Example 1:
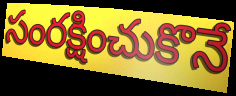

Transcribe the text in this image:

సంరక్షించుకొనే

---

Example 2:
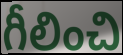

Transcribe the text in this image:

గీలించి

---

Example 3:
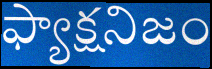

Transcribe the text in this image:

ఫ్యాక్షనిజం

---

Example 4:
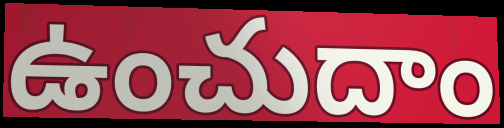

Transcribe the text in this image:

ఉంచుదాం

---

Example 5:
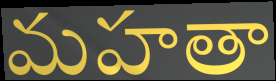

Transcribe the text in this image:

మహతా